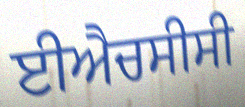
ਈਐਚਸੀਸੀ